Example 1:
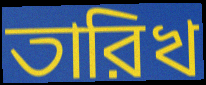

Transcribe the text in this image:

তারিখ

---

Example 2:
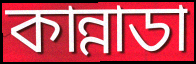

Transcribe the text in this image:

কান্নাডা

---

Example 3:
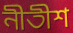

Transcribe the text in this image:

নীতীশ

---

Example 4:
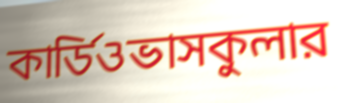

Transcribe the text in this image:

কার্ডিওভাসকুলার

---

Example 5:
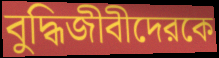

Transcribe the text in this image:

বুদ্ধিজীবীদেরকে